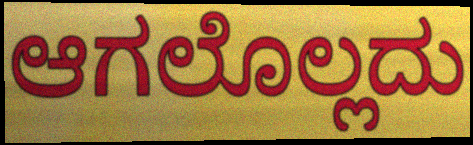
ಆಗಲೊಲ್ಲದು